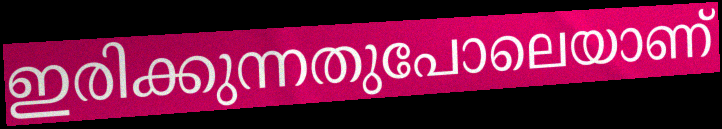
ഇരിക്കുന്നതുപോലെയാണ്